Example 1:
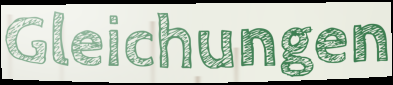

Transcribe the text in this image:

Gleichungen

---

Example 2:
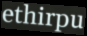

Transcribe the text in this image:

ethirpu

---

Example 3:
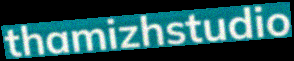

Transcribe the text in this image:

thamizhstudio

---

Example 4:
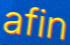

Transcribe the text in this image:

afin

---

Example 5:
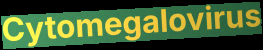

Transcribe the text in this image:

Cytomegalovirus